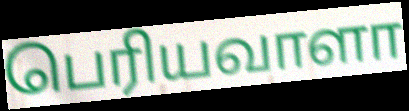
பெரியவாளா